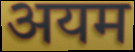
अयम